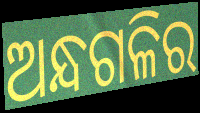
ଅନ୍ଧଗଳିର